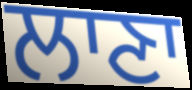
ਲਾਣਾ